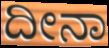
ದೀನಾ